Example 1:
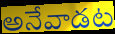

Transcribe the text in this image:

అనేవాడట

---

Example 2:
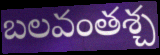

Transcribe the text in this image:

బలవంతశ్చ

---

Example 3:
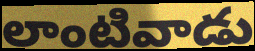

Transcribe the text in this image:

లాంటివాడు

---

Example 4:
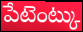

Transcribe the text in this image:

పేటెంట్కు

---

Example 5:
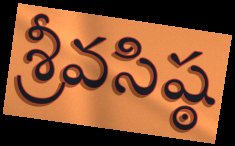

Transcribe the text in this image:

శ్రీవసిష్ఠ